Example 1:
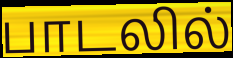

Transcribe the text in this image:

பாடலில்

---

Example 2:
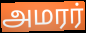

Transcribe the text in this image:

அமரர்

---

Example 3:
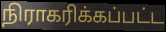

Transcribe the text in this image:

நிராகரிக்கப்பட்ட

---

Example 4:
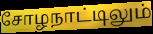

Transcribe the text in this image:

சோழநாட்டிலும்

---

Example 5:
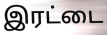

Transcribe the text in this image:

இரட்டை